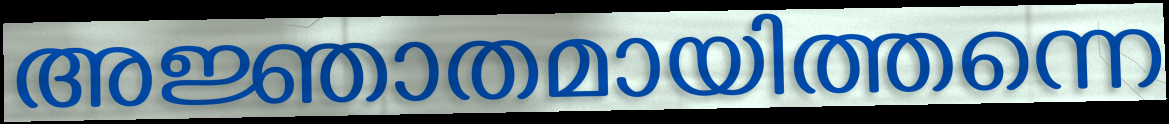
അജ്ഞാതമായിത്തന്നെ